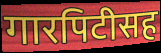
गारपिटीसह